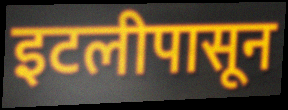
इटलीपासून